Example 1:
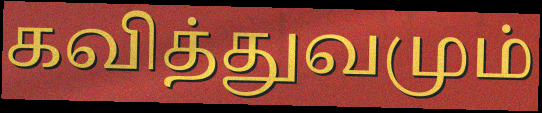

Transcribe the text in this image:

கவித்துவமும்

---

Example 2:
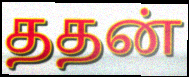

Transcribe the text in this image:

ததன்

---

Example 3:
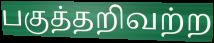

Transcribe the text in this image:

பகுத்தறிவற்ற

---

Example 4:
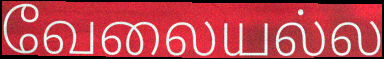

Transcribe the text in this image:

வேலையல்ல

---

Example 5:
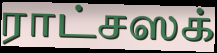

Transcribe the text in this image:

ராட்சஸக்